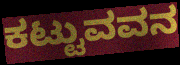
ಕಟ್ಟುವವನ